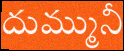
దుమ్మునీ